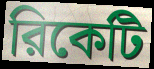
রিকেটি